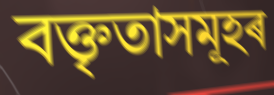
বক্তৃতাসমূহৰ